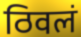
ठिवलं